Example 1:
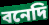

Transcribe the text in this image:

বনেদি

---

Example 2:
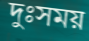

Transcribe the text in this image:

দুঃসময়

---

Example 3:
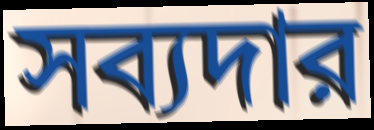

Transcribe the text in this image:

সব্যদার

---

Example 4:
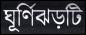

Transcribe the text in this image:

ঘূর্ণিঝড়টি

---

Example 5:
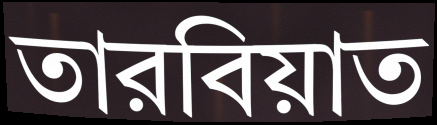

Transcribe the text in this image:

তারবিয়াত